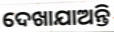
ଦେଖାଯାଅନ୍ତି